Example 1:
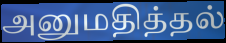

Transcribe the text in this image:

அனுமதித்தல்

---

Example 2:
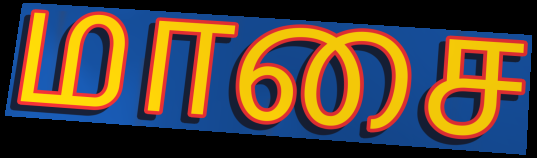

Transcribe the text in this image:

மாசை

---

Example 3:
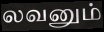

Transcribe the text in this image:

லவனும்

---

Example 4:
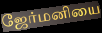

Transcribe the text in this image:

ஜேர்மனியை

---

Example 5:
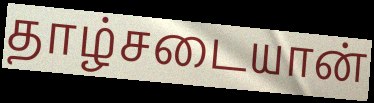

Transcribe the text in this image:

தாழ்சடையான்